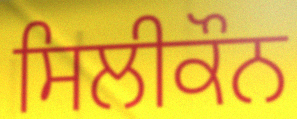
ਸਿਲੀਕੌਨ